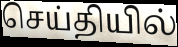
செய்தியில்